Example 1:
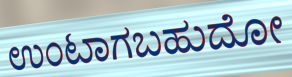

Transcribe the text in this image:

ಉಂಟಾಗಬಹುದೋ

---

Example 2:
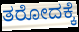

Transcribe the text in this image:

ತರೋದಕ್ಕೆ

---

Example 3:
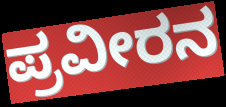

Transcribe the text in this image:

ಪ್ರವೀರನ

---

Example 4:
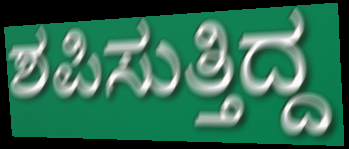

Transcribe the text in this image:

ಶಪಿಸುತ್ತಿದ್ದ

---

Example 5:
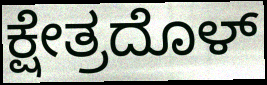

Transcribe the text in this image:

ಕ್ಷೇತ್ರದೊಳ್